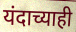
यंदाच्याही